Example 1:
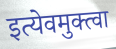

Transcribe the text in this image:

इत्येवमुक्त्वा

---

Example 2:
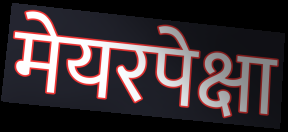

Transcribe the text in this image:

मेयरपेक्षा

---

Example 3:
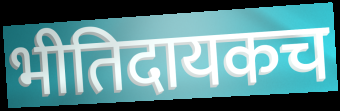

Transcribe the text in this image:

भीतिदायकच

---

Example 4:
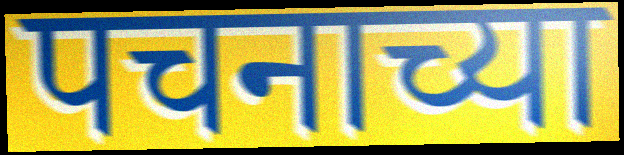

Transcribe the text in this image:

पचनाच्या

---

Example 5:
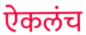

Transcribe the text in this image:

ऐकलंच